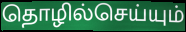
தொழில்செய்யும்